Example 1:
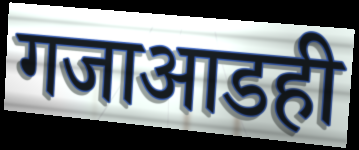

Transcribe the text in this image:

गजाआडही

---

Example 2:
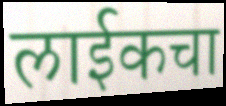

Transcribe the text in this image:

लाईकचा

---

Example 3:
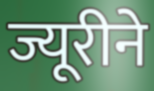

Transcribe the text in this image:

ज्यूरीने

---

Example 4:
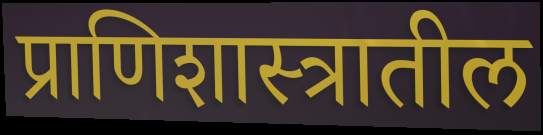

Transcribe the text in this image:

प्राणिशास्त्रातील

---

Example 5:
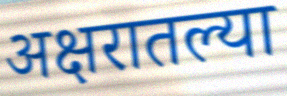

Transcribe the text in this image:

अक्षरातल्या